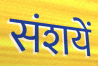
संशयें